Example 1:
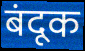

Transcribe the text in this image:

बंदूक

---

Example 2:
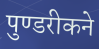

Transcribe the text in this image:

पुण्डरीकने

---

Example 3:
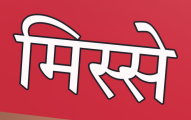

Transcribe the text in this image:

मिस्से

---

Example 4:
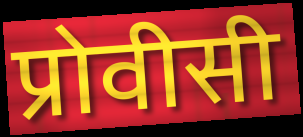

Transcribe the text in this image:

प्रोवीसी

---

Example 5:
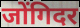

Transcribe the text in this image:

जोंगिदर